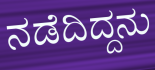
ನಡೆದಿದ್ದನು